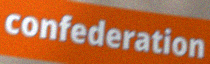
confederation